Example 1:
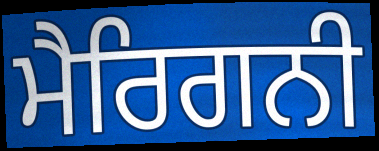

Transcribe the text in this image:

ਮੈਰਿਗਨੀ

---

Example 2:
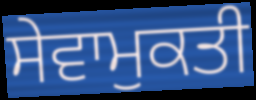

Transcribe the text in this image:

ਸੇਵਾਮੁਕਤੀ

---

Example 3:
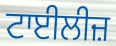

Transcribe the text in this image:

ਟਾਈਲੀਜ਼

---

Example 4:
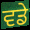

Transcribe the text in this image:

ਵਡੇ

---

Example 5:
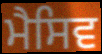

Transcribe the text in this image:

ਮੈਸਿਵ